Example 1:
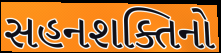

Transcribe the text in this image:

સહનશક્તિનો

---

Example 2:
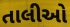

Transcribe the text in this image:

તાલીઓ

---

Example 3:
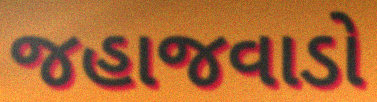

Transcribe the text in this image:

જહાજવાડો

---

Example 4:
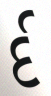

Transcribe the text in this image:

ર્દ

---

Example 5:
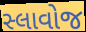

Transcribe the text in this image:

સ્લાવોજ